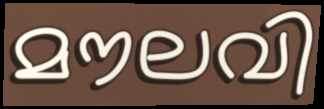
മൗലവി